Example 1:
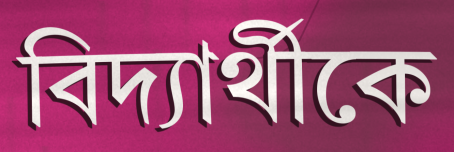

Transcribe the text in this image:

বিদ্যার্থীকে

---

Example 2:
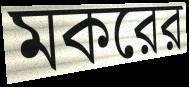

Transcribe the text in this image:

মকরের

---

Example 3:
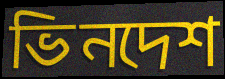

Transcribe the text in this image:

ভিনদেশ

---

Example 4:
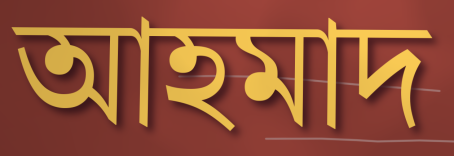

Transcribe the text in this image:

আহমাদ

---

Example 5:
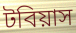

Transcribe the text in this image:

টবিয়াস